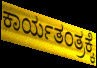
ಕಾರ್ಯತಂತ್ರಕ್ಕೆ